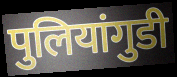
पुलियांगुडी